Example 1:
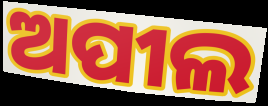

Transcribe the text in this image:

ଅପୀଲ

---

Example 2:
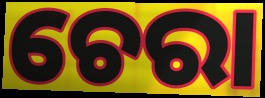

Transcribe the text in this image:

ଚେରା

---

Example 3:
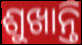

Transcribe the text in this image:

ଶୁଖାନ୍ତି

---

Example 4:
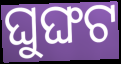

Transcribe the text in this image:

ଘୁଙ୍ଘଟ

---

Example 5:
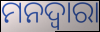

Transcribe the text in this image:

ମନଦ୍ଵାରା